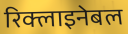
रिक्लाइनेबल